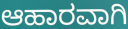
ಆಹಾರವಾಗಿ